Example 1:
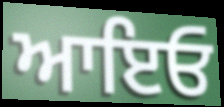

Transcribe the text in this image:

ਆਇਓ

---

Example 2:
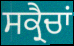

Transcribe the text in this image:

ਸਕ੍ਰੈਚਾਂ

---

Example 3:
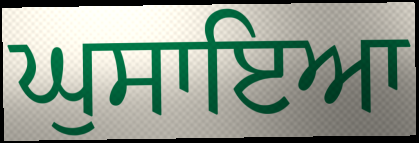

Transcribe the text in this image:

ਘੁਸਾਇਆ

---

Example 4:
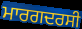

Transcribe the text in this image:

ਮਾਰਗਦਰਸੀ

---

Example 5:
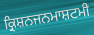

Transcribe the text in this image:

ਕ੍ਰਿਸ਼ਨਜਨਮਾਸ਼ਟਮੀ